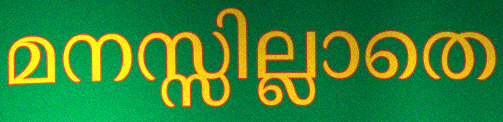
മനസ്സില്ലാതെ